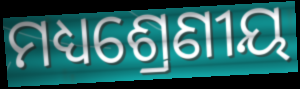
ମଧ୍ୟଶ୍ରେଣୀୟ